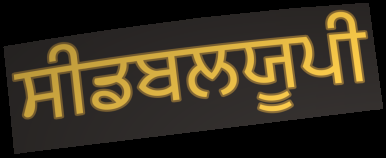
ਸੀਡਬਲਯੂਪੀ